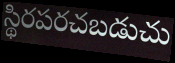
స్థిరపరచబడుచు